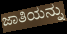
ಜಾತಿಯನ್ನು